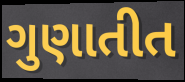
ગુણાતીત